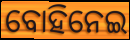
ବୋହିନେଇ